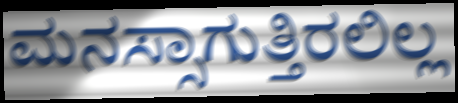
ಮನಸ್ಸಾಗುತ್ತಿರಲಿಲ್ಲ